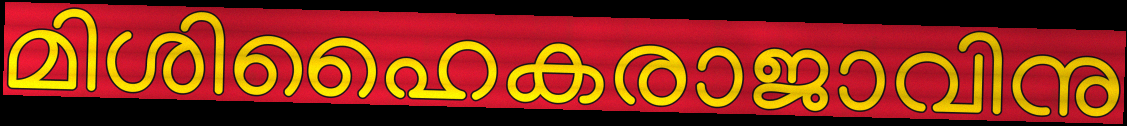
മിശിഹൈകരാജാവിനു